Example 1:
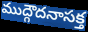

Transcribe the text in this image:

ముద్గౌదనాసక్త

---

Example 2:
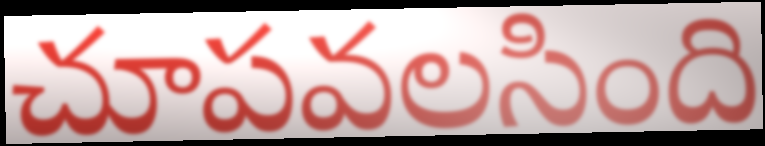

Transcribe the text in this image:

చూపవలసింది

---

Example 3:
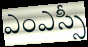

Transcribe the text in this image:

ఎంఎస్సీ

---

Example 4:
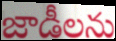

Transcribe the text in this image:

జాడీలను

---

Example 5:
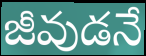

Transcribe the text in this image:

జీవుడనే